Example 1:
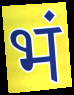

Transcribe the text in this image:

भं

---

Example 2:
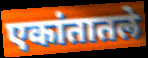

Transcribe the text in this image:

एकांतातले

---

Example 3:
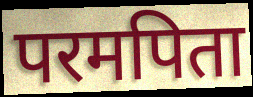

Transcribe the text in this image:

परमपिता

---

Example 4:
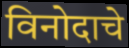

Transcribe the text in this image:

विनोदाचे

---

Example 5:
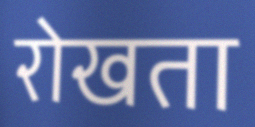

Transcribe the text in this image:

रोखता